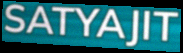
SATYAJIT